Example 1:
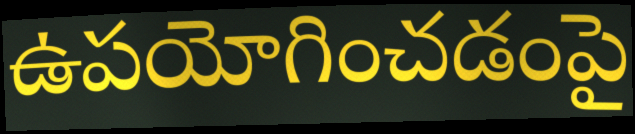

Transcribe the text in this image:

ఉపయోగించడంపై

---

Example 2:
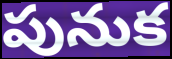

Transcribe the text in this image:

పునుక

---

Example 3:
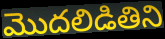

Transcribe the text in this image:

మొదలిడితిని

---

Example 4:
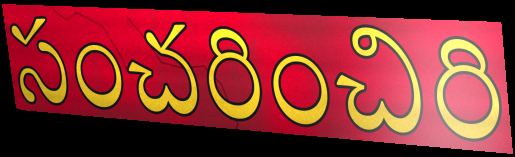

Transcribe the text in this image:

సంచరించిరి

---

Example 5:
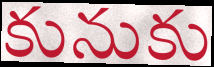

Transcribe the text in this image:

కునుకు